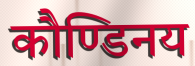
कौण्डिनय